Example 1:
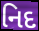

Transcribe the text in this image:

નિદ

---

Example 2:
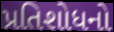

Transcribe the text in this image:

પ્રતિશોધનો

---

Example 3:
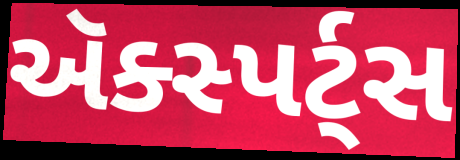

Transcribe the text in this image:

ઍક્સ્પર્ટ્સ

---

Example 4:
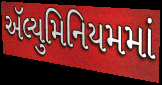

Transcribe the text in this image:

ઍલ્યુમિનિયમમાં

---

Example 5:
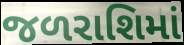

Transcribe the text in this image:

જળરાશિમાં